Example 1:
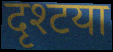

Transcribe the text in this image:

दृश्टया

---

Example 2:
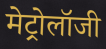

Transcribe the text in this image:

मेट्रोलॉजी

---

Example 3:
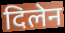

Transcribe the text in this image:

दिलेन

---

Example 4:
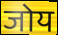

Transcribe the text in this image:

जोय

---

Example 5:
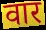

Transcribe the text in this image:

वार